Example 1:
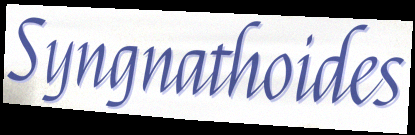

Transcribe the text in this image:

Syngnathoides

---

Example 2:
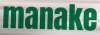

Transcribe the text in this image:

manake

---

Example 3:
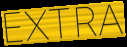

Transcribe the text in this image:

EXTRA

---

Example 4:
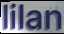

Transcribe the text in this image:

lilan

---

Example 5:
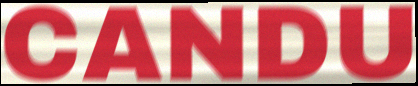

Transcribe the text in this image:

CANDU